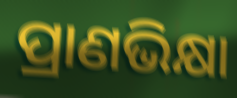
ପ୍ରାଣଭିକ୍ଷା